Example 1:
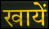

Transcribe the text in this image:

खायें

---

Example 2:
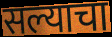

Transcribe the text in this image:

सल्याचा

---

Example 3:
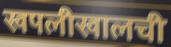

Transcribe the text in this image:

खपलीखालची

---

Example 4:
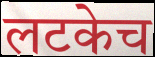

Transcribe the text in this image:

लटकेच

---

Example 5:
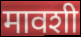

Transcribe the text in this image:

मावशी